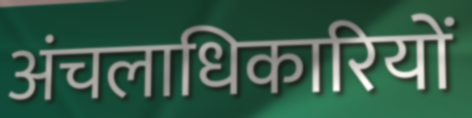
अंचलाधिकारियों